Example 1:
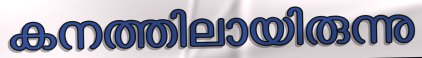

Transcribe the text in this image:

കനത്തിലായിരുന്നു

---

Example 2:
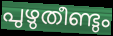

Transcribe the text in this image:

പുഴുതീണ്ടും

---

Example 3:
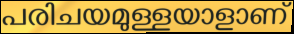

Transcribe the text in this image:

പരിചയമുള്ളയാളാണ്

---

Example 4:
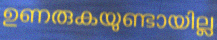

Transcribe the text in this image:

ഉണരുകയുണ്ടായില്ല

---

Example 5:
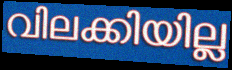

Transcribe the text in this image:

വിലക്കിയില്ല